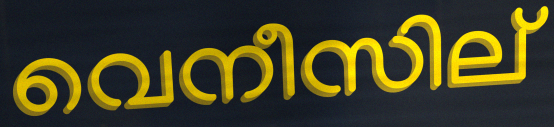
വെനീസില്